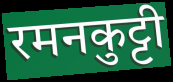
रमनकुट्टी